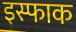
इस्फाक